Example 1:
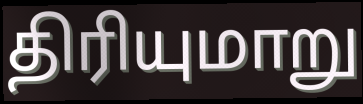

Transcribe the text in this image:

திரியுமாறு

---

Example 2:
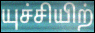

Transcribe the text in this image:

யுச்சியிற்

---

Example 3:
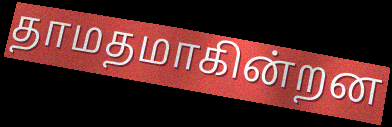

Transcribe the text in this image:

தாமதமாகின்றன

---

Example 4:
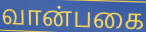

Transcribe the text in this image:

வான்பகை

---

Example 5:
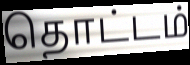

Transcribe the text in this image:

தொட்டம்